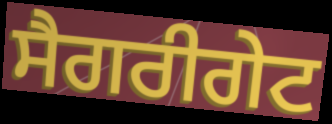
ਸੈਗਰੀਗੇਟ